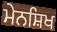
ਮੇਨਸ਼ਿਖ